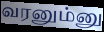
வரனும்னு